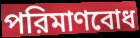
পরিমাণবোধ